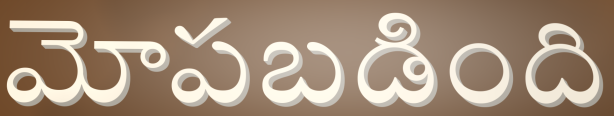
మోపబడింది